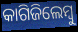
କାଗିଜିଲେମ୍ବୁ